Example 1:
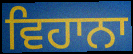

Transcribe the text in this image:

ਵਿਹਾਨਾ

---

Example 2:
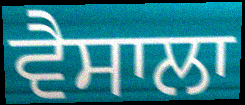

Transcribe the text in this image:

ਵੈਸਾਲਾ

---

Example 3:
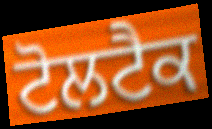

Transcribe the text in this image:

ਟੋਲਟੈਕ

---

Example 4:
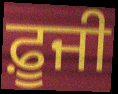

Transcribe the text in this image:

ਫ਼ੂਜੀ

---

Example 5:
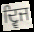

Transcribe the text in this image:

ਦ੍ਵਿਜ